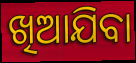
ଖିଆଯିବା